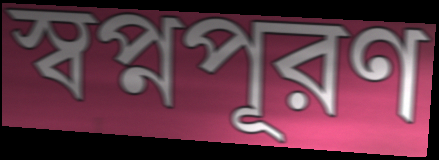
স্বপ্নপূরণ